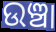
ଉଞ୍ଚା